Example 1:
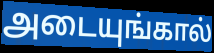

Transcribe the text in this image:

அடையுங்கால்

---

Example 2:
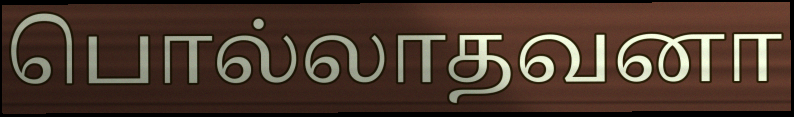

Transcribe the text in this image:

பொல்லாதவனா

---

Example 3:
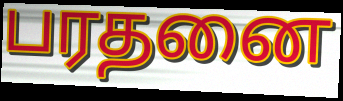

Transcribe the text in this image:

பரதனை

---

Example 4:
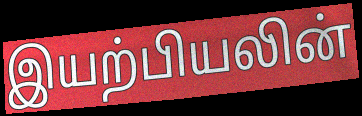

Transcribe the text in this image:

இயற்பியலின்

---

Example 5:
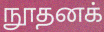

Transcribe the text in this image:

நூதனக்